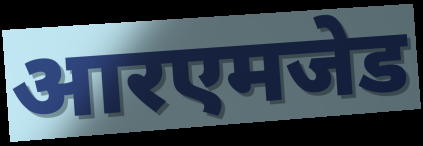
आरएमजेड